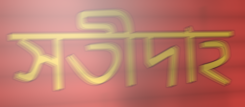
সতীদাহ